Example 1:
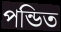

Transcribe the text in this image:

পন্ডিত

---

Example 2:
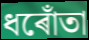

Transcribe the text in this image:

ধৰোঁতা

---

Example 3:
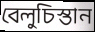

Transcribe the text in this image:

বেলুচিস্তান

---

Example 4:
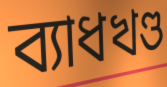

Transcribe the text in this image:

ব্যাধখণ্ড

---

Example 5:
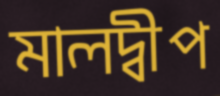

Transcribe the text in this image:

মালদ্বীপ